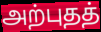
அற்புதத்